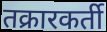
तक्रारकर्ती